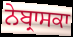
ਨੇਬ੍ਰਾਸਕਾ